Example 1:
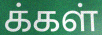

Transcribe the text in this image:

க்கள்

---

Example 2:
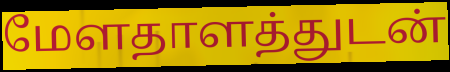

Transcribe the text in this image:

மேளதாளத்துடன்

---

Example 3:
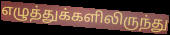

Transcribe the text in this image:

எழுத்துக்களிலிருந்து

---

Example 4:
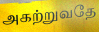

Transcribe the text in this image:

அகற்றுவதே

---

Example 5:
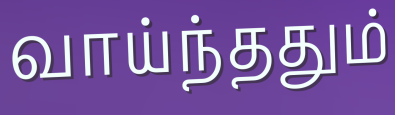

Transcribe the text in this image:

வாய்ந்ததும்